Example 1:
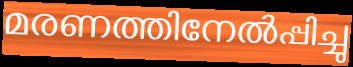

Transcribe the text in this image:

മരണത്തിനേൽപ്പിച്ചു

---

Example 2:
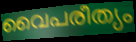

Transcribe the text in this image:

വൈപരീത്യം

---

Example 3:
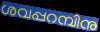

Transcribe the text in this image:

ശവപ്പറമ്പിനു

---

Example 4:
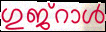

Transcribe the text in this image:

ഗുജ്റാൾ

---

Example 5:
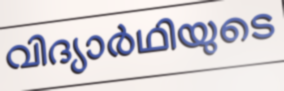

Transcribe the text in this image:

വിദ്യാർഥിയുടെ